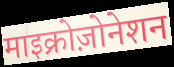
माइक्रोज़ोनेशन